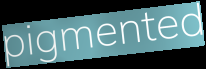
pigmented